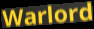
Warlord